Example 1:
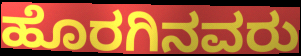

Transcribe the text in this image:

ಹೊರಗಿನವರು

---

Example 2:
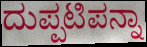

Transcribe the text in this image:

ದುಪ್ಪಟಿಪನ್ನಾ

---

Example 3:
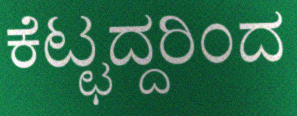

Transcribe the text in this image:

ಕೆಟ್ಟದ್ದರಿಂದ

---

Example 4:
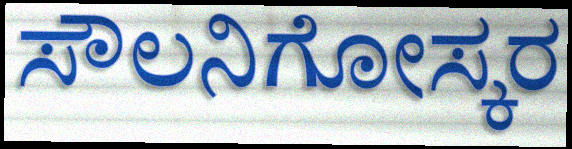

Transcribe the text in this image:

ಸೌಲನಿಗೋಸ್ಕರ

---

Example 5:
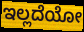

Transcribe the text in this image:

ಇಲ್ಲದೆಯೋ